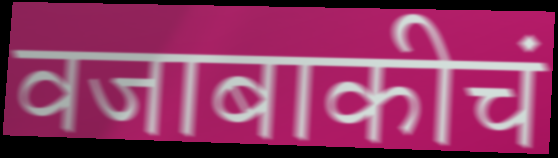
वजाबाकीचं